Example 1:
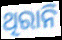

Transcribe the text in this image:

ଥିରାନି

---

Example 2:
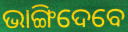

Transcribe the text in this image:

ଭାଙ୍ଗିଦେବେ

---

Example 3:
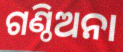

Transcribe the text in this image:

ଗଣ୍ଠିଅନା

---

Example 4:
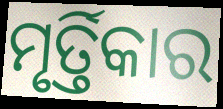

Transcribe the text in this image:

ମୃର୍ତ୍ତିକାର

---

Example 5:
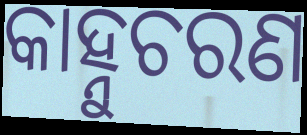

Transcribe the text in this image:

କାହ୍ନୁଚରଣ